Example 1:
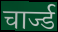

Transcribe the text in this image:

चार्ज्ड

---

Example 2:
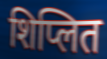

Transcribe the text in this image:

शिप्लित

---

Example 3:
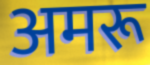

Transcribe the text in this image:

अमरू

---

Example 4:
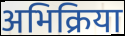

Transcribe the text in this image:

अभिक्रिया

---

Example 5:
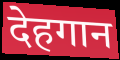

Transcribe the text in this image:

देहगान